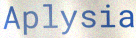
Aplysia